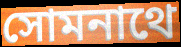
সোমনাথে